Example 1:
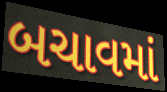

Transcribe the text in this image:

બચાવમાં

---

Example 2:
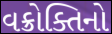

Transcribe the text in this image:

વક્રોક્તિનો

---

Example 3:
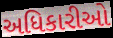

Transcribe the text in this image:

અધિકારીઓ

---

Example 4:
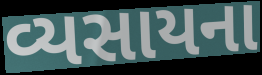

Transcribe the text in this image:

વ્યસાયના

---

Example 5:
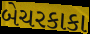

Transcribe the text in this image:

બેચરકાકા